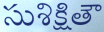
సుశిక్షితౌ